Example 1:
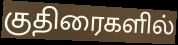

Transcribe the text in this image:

குதிரைகளில்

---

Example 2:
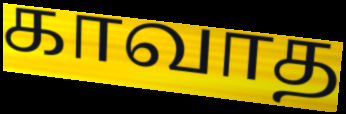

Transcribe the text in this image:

காவாத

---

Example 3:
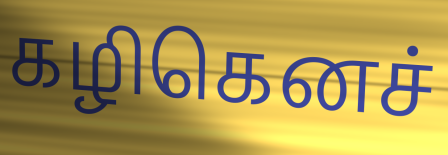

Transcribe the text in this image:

கழிகெனச்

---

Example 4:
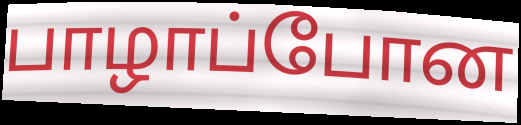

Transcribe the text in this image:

பாழாப்போன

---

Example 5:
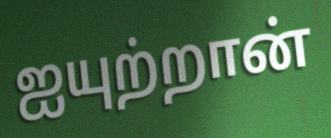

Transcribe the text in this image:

ஐயுற்றான்